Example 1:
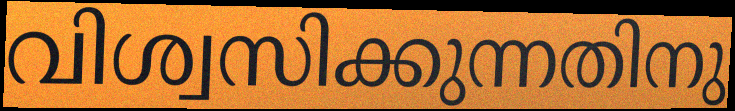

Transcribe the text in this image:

വിശ്വസിക്കുന്നതിനു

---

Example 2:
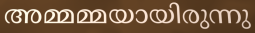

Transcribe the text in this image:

അമ്മമ്മയായിരുന്നു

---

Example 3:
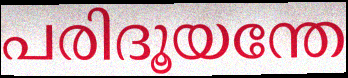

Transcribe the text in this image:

പരിദൂയന്തേ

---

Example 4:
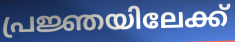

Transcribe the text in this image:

പ്രജ്ഞയിലേക്ക്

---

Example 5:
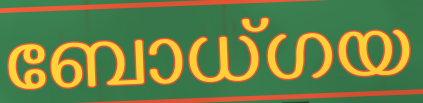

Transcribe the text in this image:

ബോധ്ഗയ